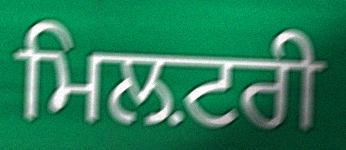
ਮਿਲ਼ਟਰੀ